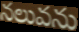
నలువను